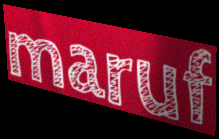
maruf